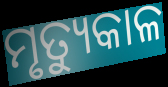
ମୃତ୍ୟୁକାଳ